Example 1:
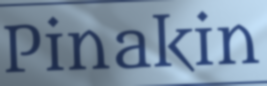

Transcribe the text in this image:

Pinakin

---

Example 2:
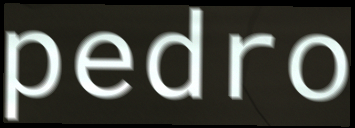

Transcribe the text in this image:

pedro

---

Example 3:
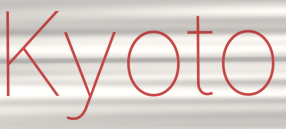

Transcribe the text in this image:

Kyoto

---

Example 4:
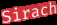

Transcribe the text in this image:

Sirach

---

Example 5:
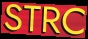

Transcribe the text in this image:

STRC